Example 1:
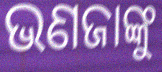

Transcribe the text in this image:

ଭଣଜାଙ୍କୁ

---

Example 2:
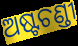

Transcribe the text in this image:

ଅଷ୍ଟଚଣ୍ଡୀ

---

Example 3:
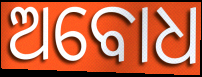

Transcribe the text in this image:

ଅବୋଧ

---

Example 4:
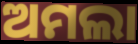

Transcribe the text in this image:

ଅମଲା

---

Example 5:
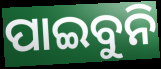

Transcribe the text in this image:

ପାଇବୁନି